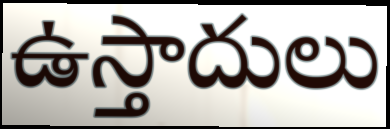
ఉస్తాదులు